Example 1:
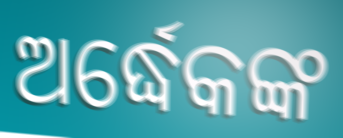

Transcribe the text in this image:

ଅର୍ଦ୍ଧେକଙ୍କ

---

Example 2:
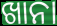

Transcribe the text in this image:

ଖାନା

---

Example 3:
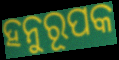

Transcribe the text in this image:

ହନୁରୂପକ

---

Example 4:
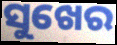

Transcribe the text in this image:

ସୁଖେର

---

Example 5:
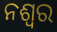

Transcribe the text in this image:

ନଶ୍ଵର